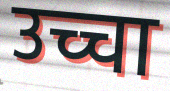
उच्चा